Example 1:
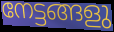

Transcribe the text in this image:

നേട്ടങ്ങളു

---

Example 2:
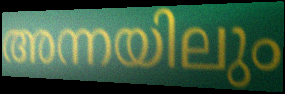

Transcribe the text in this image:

അന്നയിലും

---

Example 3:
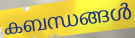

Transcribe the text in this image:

കബന്ധങ്ങൾ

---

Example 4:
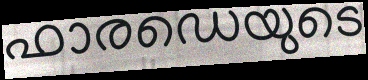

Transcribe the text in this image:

ഫാരഡെയുടെ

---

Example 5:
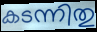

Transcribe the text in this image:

കടന്നിതു